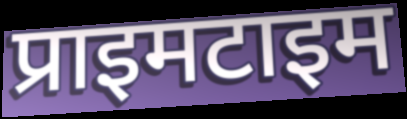
प्राइमटाइम